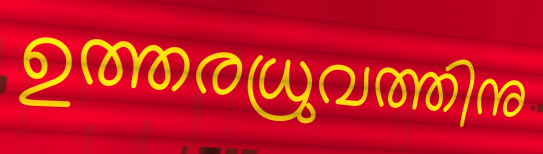
ഉത്തരധ്രുവത്തിനു